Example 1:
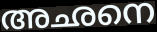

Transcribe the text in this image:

അഛനെ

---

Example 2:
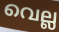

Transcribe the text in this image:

വെല്ല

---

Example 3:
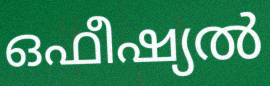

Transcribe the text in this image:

ഒഫീഷ്യൽ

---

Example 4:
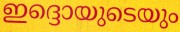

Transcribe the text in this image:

ഇദ്ദൊയുടെയും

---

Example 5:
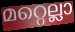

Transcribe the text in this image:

മറ്റെല്ലാ